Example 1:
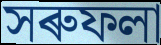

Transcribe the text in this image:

সৰুফলা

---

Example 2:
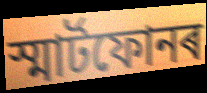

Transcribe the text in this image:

স্মাৰ্টফোনৰ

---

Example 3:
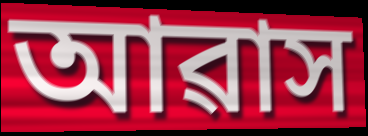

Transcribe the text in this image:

আৱাস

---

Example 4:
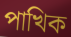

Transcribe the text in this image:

পাখিক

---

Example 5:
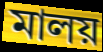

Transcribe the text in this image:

মালয়